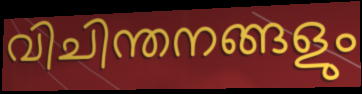
വിചിന്തനങ്ങളും